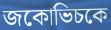
জকোভিচকে